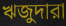
ঋজুদারা